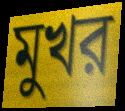
মুখর